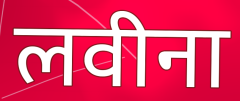
लवीना